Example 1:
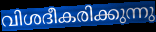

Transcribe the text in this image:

വിശദീകരിക്കുന്നു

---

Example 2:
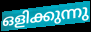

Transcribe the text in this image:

ഒളിക്കുന്നു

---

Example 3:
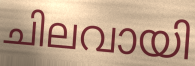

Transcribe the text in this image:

ചിലവായി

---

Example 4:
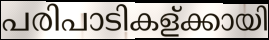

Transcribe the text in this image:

പരിപാടികള്ക്കായി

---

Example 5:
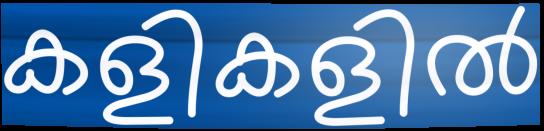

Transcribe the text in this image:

കളികളിൽ